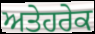
ਅਤੇਹਰੇਕ